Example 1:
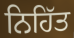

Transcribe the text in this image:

ਨਿਹਿੱਤ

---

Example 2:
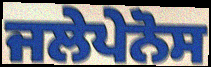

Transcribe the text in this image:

ਜਲੇਪੇਨੋਸ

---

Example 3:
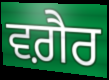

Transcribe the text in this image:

ਵਗ਼ੈਰ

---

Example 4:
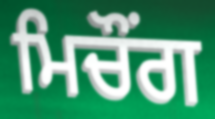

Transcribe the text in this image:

ਮਿਚੌਂਗ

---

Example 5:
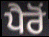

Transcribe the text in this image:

ਪੈਰੋਂ